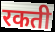
रकती